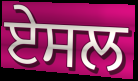
ਏਸਲ